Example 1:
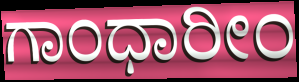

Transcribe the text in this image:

ಗಾಂಧಾರೀಂ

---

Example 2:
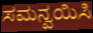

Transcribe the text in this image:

ಸಮನ್ವಯಿಸಿ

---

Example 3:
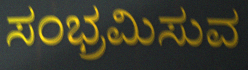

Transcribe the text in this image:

ಸಂಭ್ರಮಿಸುವ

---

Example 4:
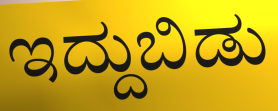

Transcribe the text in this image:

ಇದ್ದುಬಿಡು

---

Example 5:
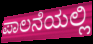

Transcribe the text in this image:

ಪಾಲನೆಯಲ್ಲಿ